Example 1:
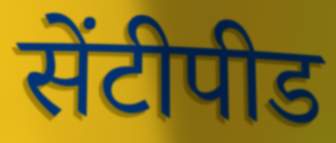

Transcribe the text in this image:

सेंटीपीड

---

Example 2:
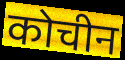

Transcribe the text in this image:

कोचीन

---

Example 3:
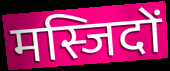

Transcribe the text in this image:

मस्‍जिदों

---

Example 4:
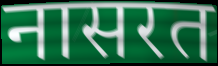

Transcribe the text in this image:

नासरत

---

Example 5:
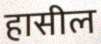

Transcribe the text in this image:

हासील